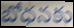
బోధనకు